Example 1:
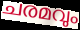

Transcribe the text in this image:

ചരമവും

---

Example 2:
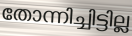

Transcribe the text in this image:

തോന്നിച്ചിട്ടില്ല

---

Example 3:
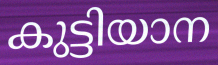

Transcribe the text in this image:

കുട്ടിയാന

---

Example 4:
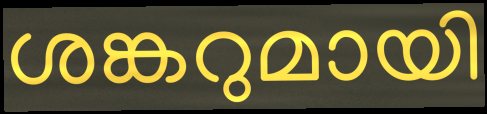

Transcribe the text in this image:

ശങ്കറുമായി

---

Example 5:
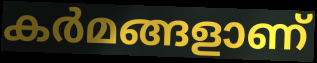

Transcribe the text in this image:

കർമങ്ങളാണ്